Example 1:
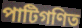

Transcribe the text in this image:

পাটিগণিত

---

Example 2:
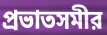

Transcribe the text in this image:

প্রভাতসমীর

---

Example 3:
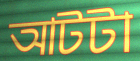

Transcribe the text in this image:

আটটা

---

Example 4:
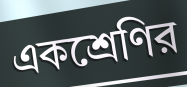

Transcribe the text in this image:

একশ্রেণির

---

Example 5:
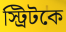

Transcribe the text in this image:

স্ট্রিটকে